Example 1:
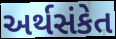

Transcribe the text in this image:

અર્થસંકેત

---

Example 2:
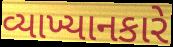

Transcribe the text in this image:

વ્યાખ્યાનકારે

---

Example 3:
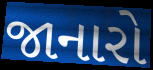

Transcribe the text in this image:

જાનારો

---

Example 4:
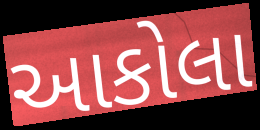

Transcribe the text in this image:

આકોલા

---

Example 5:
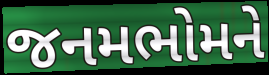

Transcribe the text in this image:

જનમભોમને